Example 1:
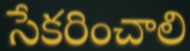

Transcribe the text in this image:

సేకరించాలి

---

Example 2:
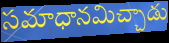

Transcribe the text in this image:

సమాధానమిచ్చాడు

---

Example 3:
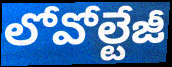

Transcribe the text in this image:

లోవోల్టేజీ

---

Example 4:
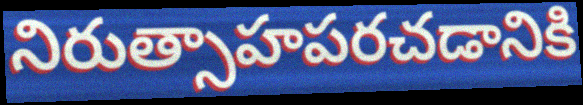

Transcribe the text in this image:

నిరుత్సాహపరచడానికి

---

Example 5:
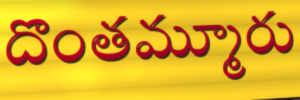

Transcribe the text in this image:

దొంతమ్మూరు